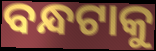
ବନ୍ଧଟାକୁ